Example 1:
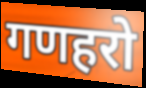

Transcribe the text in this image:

गणहरो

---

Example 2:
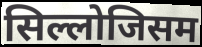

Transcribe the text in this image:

सिल्लोजिसम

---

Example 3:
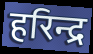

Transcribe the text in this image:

हरिन्द्र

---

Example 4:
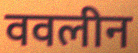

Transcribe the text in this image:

ववलीन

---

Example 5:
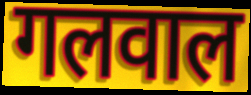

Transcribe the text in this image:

गलवाल